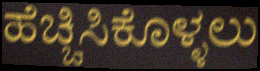
ಹೆಚ್ಚಿಸಿಕೊಳ್ಳಲು